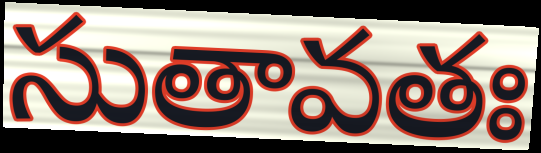
సుతావతః